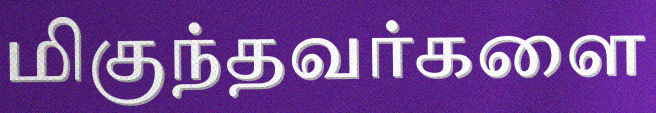
மிகுந்தவர்களை